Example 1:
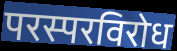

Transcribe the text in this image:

परस्परविरोध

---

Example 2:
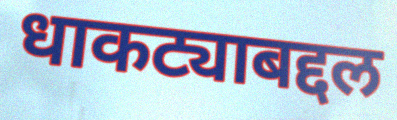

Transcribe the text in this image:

धाकट्याबद्दल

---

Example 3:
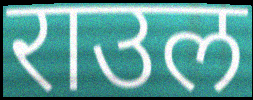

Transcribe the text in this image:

राउल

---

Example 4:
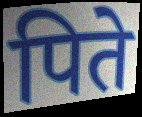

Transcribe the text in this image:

पिते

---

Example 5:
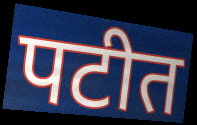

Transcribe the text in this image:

पटीत